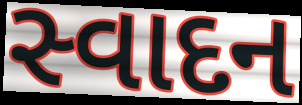
સ્વાદન